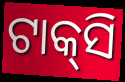
ଟାକ୍‍ସି